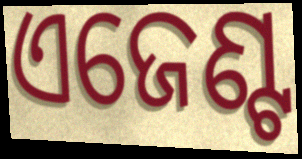
ଏଜେଣ୍ଟ